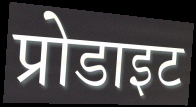
प्रोडाइट